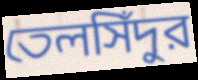
তেলসিঁদুর